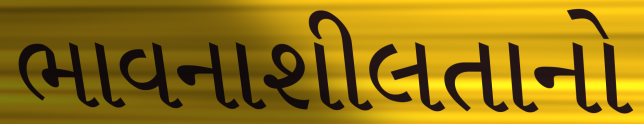
ભાવનાશીલતાનો